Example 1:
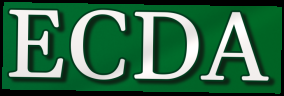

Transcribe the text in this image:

ECDA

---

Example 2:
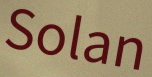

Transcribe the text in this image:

Solan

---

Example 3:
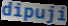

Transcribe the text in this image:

dipuji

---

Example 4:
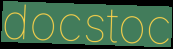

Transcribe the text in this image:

docstoc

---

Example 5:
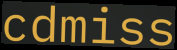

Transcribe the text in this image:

cdmiss